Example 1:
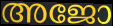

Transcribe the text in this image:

അജോ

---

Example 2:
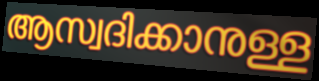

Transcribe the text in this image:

ആസ്വദിക്കാനുള്ള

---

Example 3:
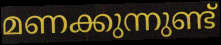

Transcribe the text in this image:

മണക്കുന്നുണ്ട്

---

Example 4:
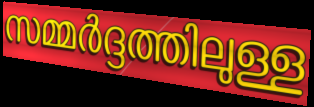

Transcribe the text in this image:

സമ്മർദ്ദത്തിലുള്ള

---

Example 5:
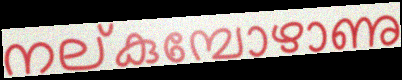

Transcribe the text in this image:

നല്കുമ്പോഴാണു